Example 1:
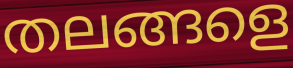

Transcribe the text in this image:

തലങ്ങളെ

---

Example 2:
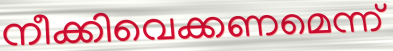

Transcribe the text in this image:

നീക്കിവെക്കണമെന്ന്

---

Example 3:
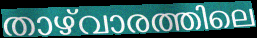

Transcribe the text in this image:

താഴ്‌വാരത്തിലെ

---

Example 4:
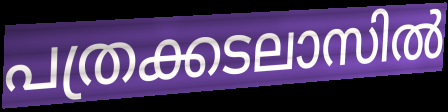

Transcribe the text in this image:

പത്രക്കടലാസിൽ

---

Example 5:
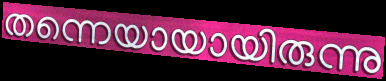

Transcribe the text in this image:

തന്നെയായായിരുന്നു